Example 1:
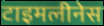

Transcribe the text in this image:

टाइमलीनेस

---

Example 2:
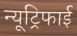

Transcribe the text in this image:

न्यूट्रिफाई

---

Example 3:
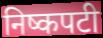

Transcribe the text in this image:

निष्कपटी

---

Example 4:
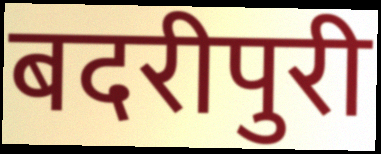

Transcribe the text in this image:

बदरीपुरी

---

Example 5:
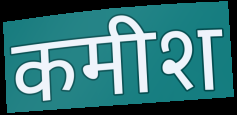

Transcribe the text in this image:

कमीश